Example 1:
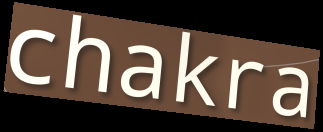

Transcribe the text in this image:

chakra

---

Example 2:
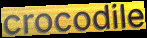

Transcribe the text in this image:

crocodile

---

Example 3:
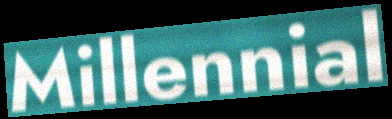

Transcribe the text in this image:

Millennial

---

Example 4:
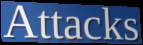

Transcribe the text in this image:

Attacks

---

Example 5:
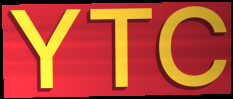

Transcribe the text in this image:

YTC